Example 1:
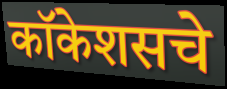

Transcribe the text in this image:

कॉकेशसचे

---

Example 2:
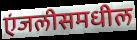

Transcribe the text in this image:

एंजलीसमधील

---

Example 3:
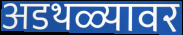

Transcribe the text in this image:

अडथळ्यावर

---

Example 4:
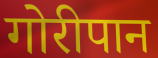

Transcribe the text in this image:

गोरीपान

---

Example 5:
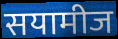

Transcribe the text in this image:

सयामीज